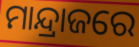
ମାନ୍ଦ୍ରାଜରେ